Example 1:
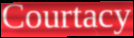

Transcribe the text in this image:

Courtacy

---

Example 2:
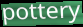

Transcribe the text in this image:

pottery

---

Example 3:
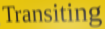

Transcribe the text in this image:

Transiting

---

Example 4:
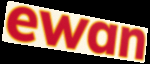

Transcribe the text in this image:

ewan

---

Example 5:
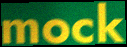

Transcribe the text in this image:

mock